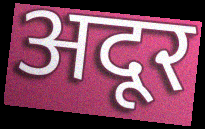
अदूर